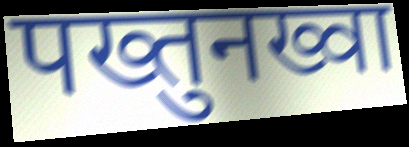
पख्तुनख्वा